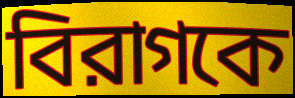
বিরাগকে